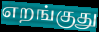
எறங்குது